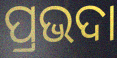
ପ୍ରଭଦା